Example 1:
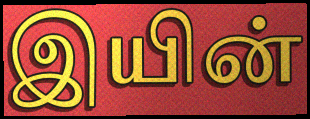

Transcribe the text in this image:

இயின்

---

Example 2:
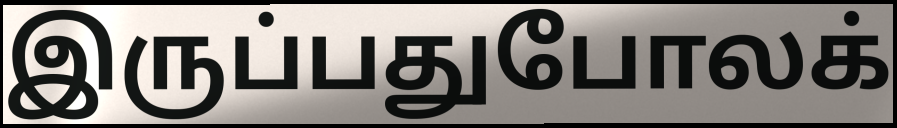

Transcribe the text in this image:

இருப்பதுபோலக்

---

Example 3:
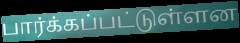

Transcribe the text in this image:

பார்க்கப்பட்டுள்ளன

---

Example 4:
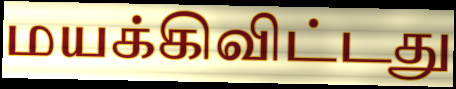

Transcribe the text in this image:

மயக்கிவிட்டது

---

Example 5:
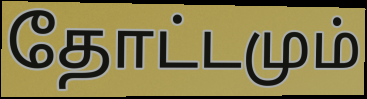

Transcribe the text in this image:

தோட்டமும்